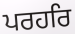
ਪਰਹਰਿ